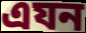
এযন